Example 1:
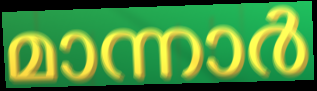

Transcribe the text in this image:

മാന്നാർ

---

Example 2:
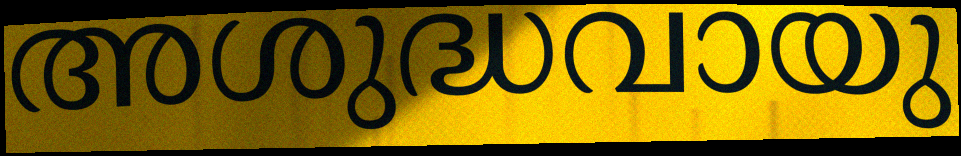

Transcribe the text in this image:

അശുദ്ധവായു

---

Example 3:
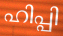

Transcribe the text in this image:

ഹിപ്പി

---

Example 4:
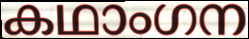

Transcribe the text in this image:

കഥാംഗന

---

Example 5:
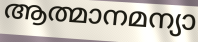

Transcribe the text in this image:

ആത്മാനമന്യാ